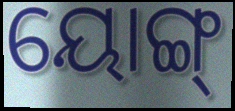
ୟୋଙ୍ଗ୍